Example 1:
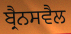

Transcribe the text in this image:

ਬ੍ਰੈਨਸਵੈਲ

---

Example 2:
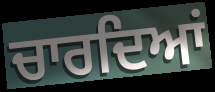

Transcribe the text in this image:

ਚਾਰਦਿਆਂ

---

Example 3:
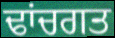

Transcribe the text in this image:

ਢਾਂਚਗਤ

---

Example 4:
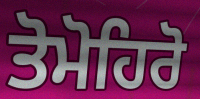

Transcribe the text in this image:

ਤੋਮੋਹਿਰੋ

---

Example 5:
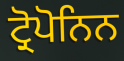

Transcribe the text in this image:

ਟ੍ਰੋਪੋਨਿਨ